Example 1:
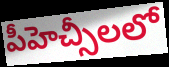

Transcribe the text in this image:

పీహెచ్సీలలో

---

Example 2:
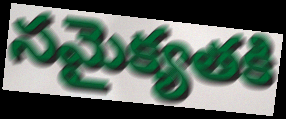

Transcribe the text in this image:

సమైక్యతకి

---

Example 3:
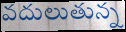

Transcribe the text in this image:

వదులుతున్న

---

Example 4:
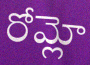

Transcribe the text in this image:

రోమ్లో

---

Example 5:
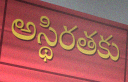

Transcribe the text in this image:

అస్థిరతకు